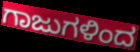
ಗಾಜುಗಳಿಂದ